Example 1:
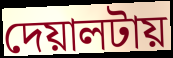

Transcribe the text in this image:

দেয়ালটায়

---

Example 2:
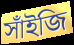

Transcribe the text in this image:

সাঁইজি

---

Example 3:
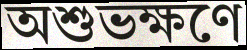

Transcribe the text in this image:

অশুভক্ষণে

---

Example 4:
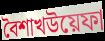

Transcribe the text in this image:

বৈশাখউয়েফা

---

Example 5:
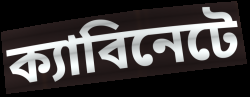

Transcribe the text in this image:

ক্যাবিনেটে